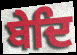
ਬੇਦਿ